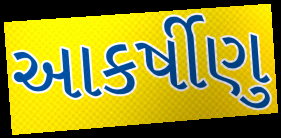
આકર્ષીણુ